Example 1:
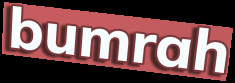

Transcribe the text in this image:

bumrah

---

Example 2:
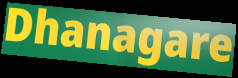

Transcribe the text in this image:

Dhanagare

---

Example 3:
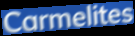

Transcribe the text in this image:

Carmelites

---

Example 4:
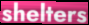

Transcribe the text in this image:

shelters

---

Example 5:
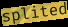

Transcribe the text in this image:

splited